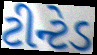
ટીન્ટેડ